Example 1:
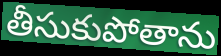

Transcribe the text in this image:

తీసుకుపోతాను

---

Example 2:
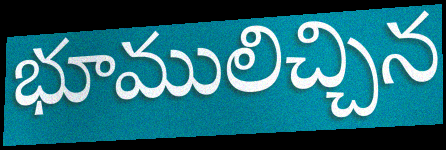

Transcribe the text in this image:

భూములిచ్చిన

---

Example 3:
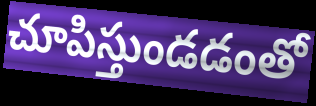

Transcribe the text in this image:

చూపిస్తుండడంతో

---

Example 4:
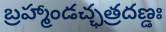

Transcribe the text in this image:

బ్రహ్మాండచ్ఛత్రదణ్డః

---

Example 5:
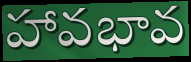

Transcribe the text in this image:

హావభావ